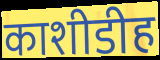
काशीडीह